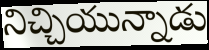
నిచ్చియున్నాడు